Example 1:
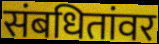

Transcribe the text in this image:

संबधितांवर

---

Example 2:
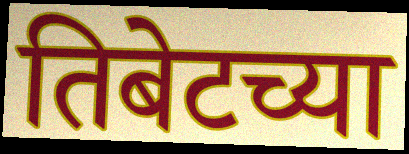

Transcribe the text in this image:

तिबेटच्या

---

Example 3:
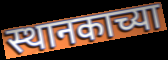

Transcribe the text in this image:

स्थानकाच्या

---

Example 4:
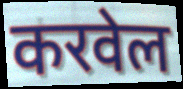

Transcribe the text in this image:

करवेल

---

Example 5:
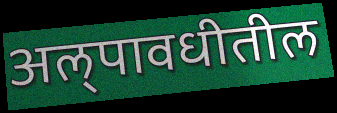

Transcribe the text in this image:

अल्पावधीतील